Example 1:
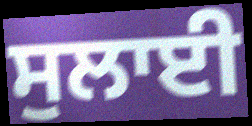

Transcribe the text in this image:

ਸੁਲਾਈ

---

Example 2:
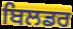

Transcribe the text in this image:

ਬਿਲਡਰ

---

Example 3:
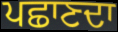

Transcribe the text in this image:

ਪਛਾਣਦਾ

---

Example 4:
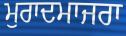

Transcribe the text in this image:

ਮੁਰਾਦਮਾਜਰਾ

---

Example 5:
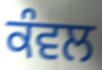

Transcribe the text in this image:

ਕੰਵਲ